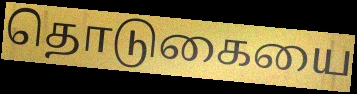
தொடுகையை